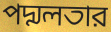
পদ্মলতার